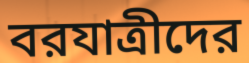
বরযাত্রীদের